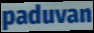
paduvan